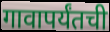
गावापर्यंतची